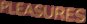
PLEASURES